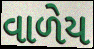
વાળેય